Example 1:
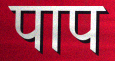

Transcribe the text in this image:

पाप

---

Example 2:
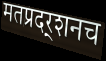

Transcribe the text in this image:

मतप्रदर्शनच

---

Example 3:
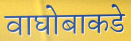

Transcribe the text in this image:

वाघोबाकडे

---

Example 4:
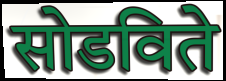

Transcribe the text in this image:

सोडविते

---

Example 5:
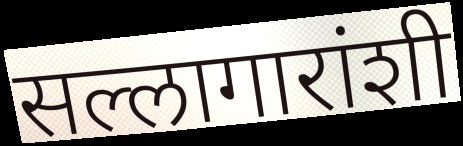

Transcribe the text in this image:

सल्लागारांशी